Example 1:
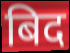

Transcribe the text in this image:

बिद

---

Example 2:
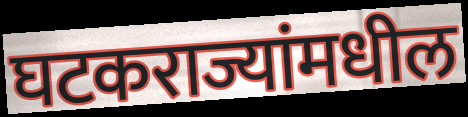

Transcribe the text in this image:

घटकराज्यांमधील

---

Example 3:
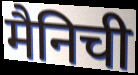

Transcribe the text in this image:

मैनिची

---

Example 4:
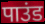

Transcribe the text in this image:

पाउंड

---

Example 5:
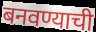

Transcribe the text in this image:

बनवण्याची